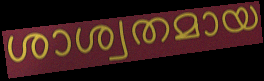
ശാശ്വതമായ